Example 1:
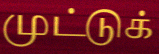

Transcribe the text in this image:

முட்டுக்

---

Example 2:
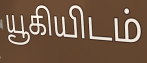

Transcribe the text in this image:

யூகியிடம்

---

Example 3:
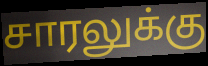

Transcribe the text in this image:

சாரலுக்கு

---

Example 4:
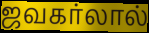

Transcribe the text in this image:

ஜவகர்லால்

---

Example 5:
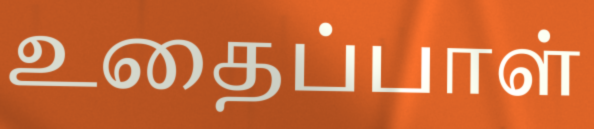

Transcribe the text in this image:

உதைப்பாள்